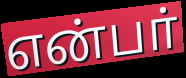
என்பர்